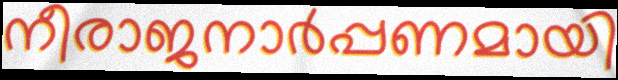
നീരാജനാർപ്പണമായി